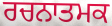
ਰਚਨਾਤਮਕ